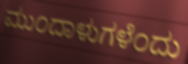
ಮುಂದಾಳುಗಳೆಂದು